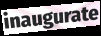
inaugurate